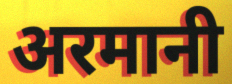
अरमानी